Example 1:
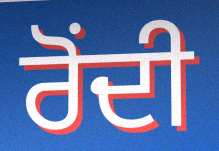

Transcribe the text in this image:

ਰੋਂਦੀ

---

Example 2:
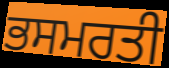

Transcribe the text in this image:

ਭਸਮਰਤੀ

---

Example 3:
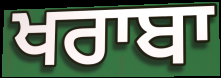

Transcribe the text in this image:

ਖਰਾਬਾ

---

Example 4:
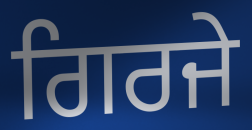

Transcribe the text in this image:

ਗਿਰਜੇ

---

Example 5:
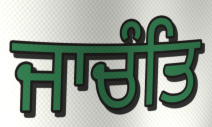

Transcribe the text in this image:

ਜਾਚੰਤਿ